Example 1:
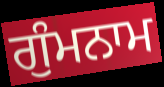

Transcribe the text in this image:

ਗੁੰਮਨਾਮ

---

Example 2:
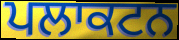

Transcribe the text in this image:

ਪਲਾਕਟਨ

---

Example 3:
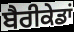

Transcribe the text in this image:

ਬੈਰੀਕੇਡਾਂ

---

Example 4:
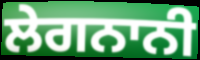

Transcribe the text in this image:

ਲੇਗਨਾਨੀ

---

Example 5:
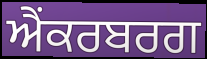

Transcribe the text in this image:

ਐਂਕਰਬਰਗ